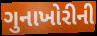
ગુનાખોરીની